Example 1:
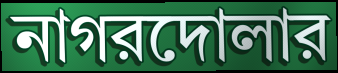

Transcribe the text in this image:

নাগরদোলার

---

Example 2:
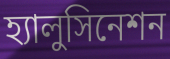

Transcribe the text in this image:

হ্যালুসিনেশন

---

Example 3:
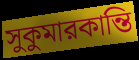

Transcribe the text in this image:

সুকুমারকান্তি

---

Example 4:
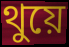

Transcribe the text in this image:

থুয়ে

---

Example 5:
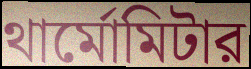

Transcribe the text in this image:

থার্মোমিটার